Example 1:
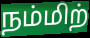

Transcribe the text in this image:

நம்மிற்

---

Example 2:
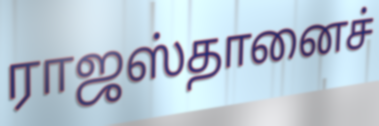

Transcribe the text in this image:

ராஜஸ்தானைச்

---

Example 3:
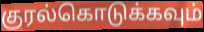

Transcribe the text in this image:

குரல்கொடுக்கவும்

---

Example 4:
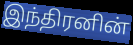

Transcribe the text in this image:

இந்திரனின்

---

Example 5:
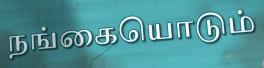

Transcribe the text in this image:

நங்கையொடும்